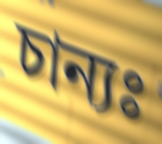
চান্যঃ